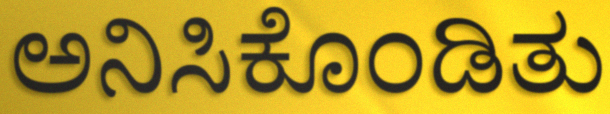
ಅನಿಸಿಕೊಂಡಿತು